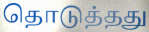
தொடுத்தது